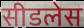
सीडलेस